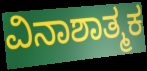
ವಿನಾಶಾತ್ಮಕ